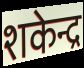
शकेन्द्र